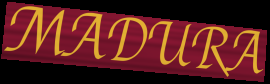
MADURA